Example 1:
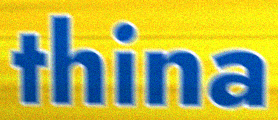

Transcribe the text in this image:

thina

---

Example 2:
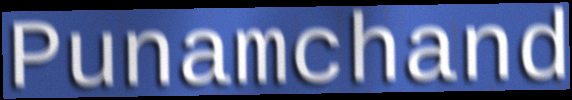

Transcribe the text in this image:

Punamchand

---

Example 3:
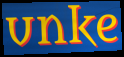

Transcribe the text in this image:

unke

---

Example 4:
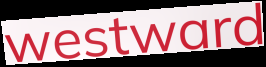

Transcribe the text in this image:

westward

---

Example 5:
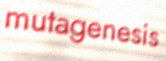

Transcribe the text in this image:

mutagenesis